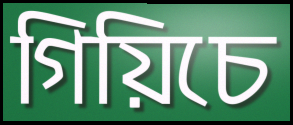
গিয়িচে